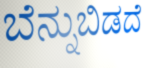
ಬೆನ್ನುಬಿಡದೆ